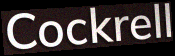
Cockrell